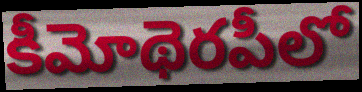
కీమోథెరపీలో